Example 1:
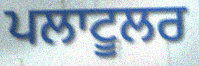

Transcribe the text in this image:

ਪਲਾਟੂਲਰ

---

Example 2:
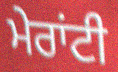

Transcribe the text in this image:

ਮੇਰਾਂਟੀ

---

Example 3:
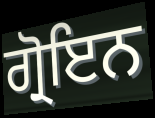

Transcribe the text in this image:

ਗ੍ਰੋਇਨ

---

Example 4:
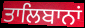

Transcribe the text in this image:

ਤਾਲਿਬਾਨਾਂ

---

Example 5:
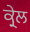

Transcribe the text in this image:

ਕ੍ਰੇਲ